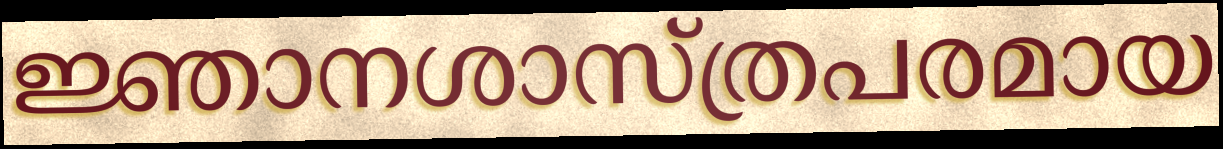
ജ്ഞാനശാസ്ത്രപരമായ